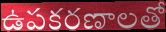
ఉపకరణాలతో